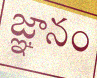
జ్ఞానం